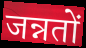
जन्नतों